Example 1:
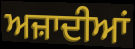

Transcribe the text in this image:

ਅਜ਼ਾਦੀਆਂ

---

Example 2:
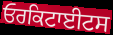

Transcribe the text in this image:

ਓਰਕਿਟਾਈਟਸ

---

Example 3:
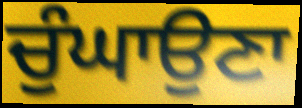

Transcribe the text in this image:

ਚੁੰਘਾਉਣਾ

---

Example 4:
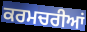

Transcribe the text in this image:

ਕਰਮਚਰੀਆਂ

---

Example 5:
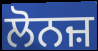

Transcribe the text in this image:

ਲੋਨਜ਼